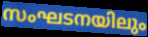
സംഘടനയിലും